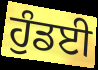
ਹੁੰਡਈ